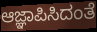
ಆಜ್ಞಾಪಿಸಿದಂತೆ